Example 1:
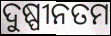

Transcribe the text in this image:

ଦୁଷ୍ପୀନତମ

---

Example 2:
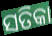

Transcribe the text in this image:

ସତିକା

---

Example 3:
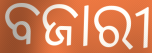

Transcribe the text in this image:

ବଜାରୀ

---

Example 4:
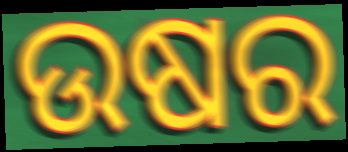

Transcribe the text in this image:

ଉଷର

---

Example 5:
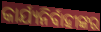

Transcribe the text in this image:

କାର୍ଯ୍ୟନିର୍ବାହୀଙ୍କର